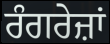
ਰੰਗਰੇਜ਼ਾਂ